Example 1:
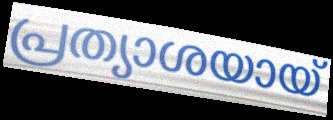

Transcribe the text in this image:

പ്രത്യാശയായ്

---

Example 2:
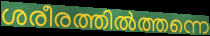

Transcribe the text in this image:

ശരീരത്തിൽത്തന്നെ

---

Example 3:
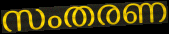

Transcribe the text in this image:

സംതരണ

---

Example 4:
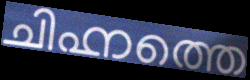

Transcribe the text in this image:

ചിഹ്നത്തെ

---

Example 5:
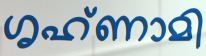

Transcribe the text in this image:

ഗൃഹ്ണാമി